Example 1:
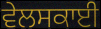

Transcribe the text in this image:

ਵੇਲਸਕਾਈ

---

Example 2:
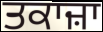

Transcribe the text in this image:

ਤਕਾਜ਼ਾ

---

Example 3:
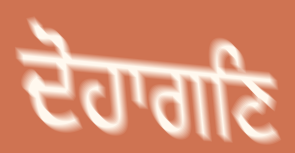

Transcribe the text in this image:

ਦੋਹਾਗਣਿ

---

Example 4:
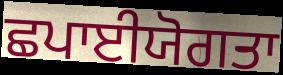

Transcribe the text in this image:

ਛਪਾਈਯੋਗਤਾ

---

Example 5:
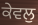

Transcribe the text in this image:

ਕੇਵਲੁ